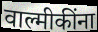
वाल्मीकींना